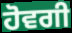
ਹੋਵਗੀ